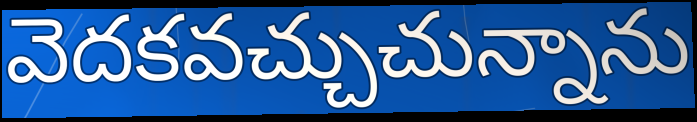
వెదకవచ్చుచున్నాను